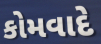
કોમવાદે